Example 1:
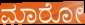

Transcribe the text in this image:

ಮಾರೋ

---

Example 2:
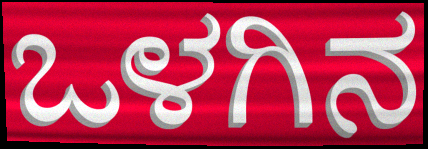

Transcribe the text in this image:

ಒಳಗಿನ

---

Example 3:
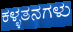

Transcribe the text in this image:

ಕಳ್ಳತನಗಳು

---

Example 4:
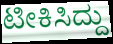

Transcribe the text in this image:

ಟೀಕಿಸಿದ್ದು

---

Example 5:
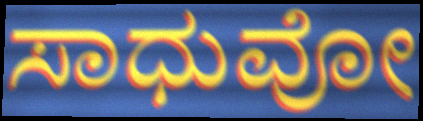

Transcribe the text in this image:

ಸಾಧುವೋ